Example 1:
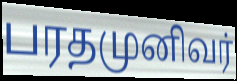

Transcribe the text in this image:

பரதமுனிவர்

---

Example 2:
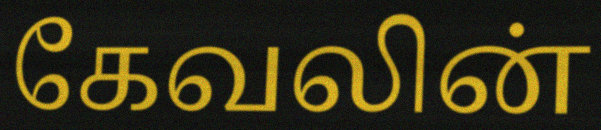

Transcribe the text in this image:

கேவலின்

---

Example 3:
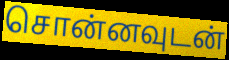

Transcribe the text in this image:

சொன்னவுடன்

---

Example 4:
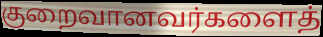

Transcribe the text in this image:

குறைவானவர்களைத்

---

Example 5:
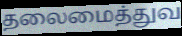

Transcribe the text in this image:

தலைமைத்துவ